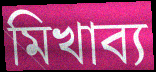
মিখাব্য